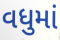
વધુમાં